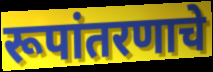
रूपांतरणाचे